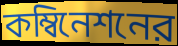
কম্বিনেশনের